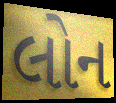
લોન